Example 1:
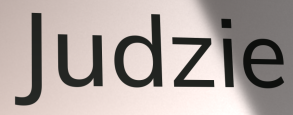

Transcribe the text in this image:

Judzie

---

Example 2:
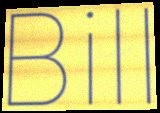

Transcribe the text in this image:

Bill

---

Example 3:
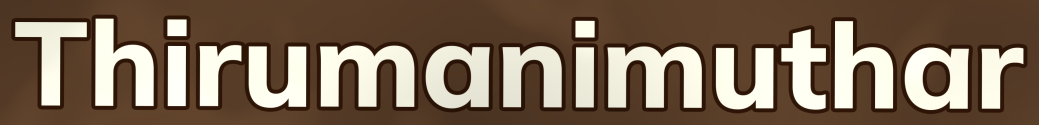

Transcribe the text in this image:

Thirumanimuthar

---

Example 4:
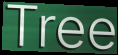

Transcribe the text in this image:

Tree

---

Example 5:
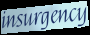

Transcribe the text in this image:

insurgency